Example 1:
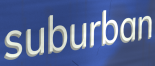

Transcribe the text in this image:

suburban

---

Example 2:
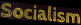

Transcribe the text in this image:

Socialism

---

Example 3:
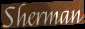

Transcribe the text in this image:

Sherman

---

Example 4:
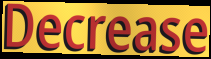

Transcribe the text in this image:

Decrease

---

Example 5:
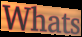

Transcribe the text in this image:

Whats